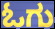
ಓಗು